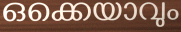
ഒക്കെയാവും